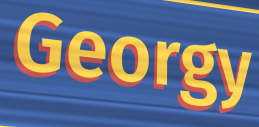
Georgy